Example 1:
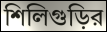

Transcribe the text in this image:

শিলিগুড়ির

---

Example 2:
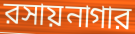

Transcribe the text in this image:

রসায়নাগার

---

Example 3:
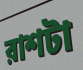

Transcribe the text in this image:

রাশটা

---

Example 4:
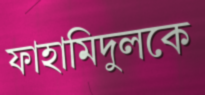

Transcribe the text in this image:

ফাহামিদুলকে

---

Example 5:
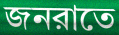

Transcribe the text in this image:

জনরাতে